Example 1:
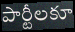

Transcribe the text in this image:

పార్టీలకూ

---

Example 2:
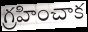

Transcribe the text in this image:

గ్రహించాక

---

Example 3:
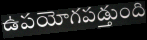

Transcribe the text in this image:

ఉపయోగపడ్తుంది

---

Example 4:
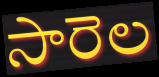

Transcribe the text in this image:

సారెల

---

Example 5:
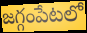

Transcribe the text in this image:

జగ్గంపేటలో